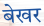
बेखर